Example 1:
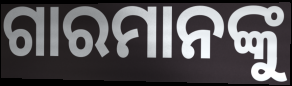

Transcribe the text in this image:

ଗାରମାନଙ୍କୁ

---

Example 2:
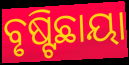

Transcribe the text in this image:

ବୃଷ୍ଟିଛାୟା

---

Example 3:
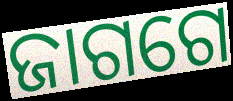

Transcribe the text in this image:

ଜାଗଗେ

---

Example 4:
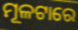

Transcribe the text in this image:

ମୂଳଟାରେ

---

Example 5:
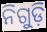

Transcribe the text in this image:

ନିଗୁଡ଼ି